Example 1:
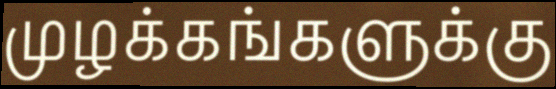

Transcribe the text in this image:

முழக்கங்களுக்கு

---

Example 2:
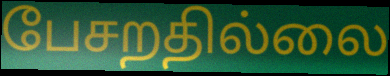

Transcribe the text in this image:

பேசறதில்லை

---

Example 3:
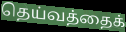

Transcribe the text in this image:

தெய்வத்தைக்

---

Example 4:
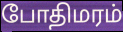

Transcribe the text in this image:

போதிமரம்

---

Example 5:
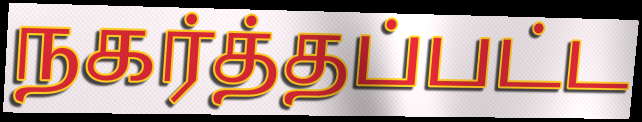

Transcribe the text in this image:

நகர்த்தப்பட்ட